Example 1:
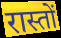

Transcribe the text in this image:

रास्‍तों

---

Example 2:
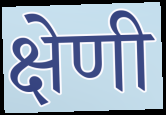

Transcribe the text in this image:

क्षेणी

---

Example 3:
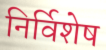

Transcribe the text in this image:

निर्विशेष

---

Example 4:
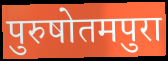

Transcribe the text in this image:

पुरुषोतमपुरा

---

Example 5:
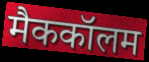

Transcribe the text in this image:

मैककॉलम